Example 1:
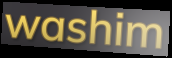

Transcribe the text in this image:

washim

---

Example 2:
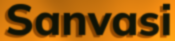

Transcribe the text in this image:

Sanvasi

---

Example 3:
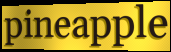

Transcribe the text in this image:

pineapple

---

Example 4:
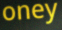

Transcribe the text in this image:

oney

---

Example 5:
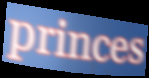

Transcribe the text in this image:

princes